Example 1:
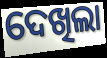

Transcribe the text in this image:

ଦେଖିଲା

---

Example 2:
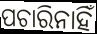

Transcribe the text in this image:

ପଚାରିନାହିଁ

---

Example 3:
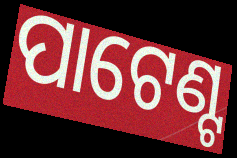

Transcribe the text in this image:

ପାଟେଣ୍ଟ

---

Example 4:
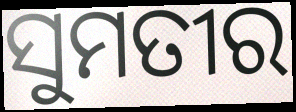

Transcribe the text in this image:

ସୁମତୀର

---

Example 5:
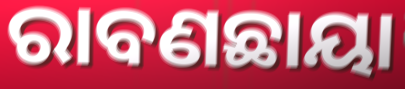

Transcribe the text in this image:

ରାବଣଛାୟା